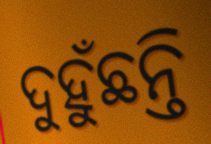
ଦୁହୁଁଛନ୍ତି